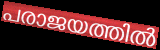
പരാജയത്തിൽ